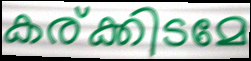
കര്ക്കിടമേ